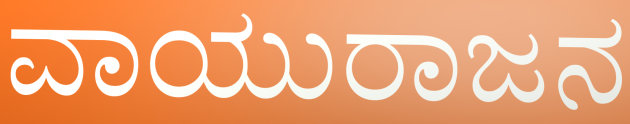
ವಾಯುರಾಜನ